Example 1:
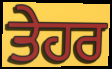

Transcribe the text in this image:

ਤੇਹਰ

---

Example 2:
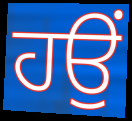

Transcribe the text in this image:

ਹਉਂ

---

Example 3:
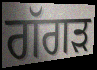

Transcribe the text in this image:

ਗੱਗੜ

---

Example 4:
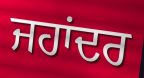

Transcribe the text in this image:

ਜਹਾਂਦਰ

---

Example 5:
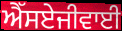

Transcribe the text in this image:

ਐੱਸਏਜੀਵਾਈ